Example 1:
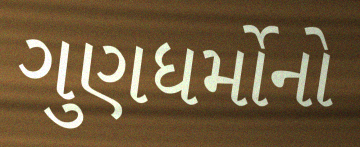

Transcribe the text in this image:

ગુણધર્મોનો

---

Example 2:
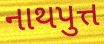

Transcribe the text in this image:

નાથપુત્ત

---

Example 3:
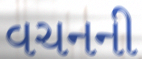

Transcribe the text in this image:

વચનની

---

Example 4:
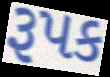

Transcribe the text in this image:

રૂપક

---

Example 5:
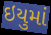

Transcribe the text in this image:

ઇયુમાં